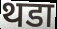
थडा